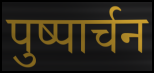
पुष्पार्चन